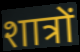
शात्रों